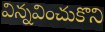
విన్నవించుకొని